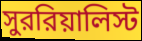
সুররিয়ালিস্ট